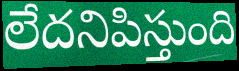
లేదనిపిస్తుంది